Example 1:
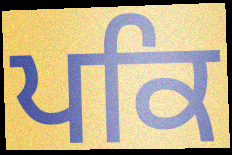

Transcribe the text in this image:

ਪਕਿ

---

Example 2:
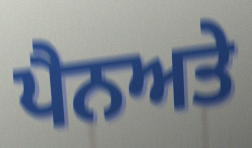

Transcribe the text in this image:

ਪੈਨਅਤੇ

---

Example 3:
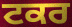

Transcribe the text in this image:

ਟਕਰ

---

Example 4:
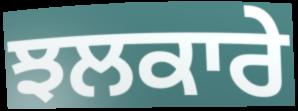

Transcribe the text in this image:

ਝਲਕਾਰੇ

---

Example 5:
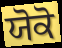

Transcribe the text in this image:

ਯੋਕੋ